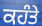
ਕਹੰਤੇ